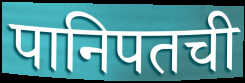
पानिपतची